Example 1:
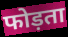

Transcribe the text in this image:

फोड़ता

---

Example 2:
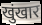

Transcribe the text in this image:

खुंखार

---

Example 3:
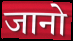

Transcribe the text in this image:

जानो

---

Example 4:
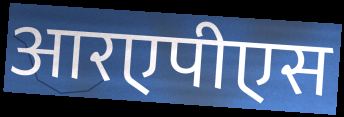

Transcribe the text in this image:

आरएपीएस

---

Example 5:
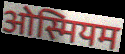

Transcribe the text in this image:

ओस्मियम